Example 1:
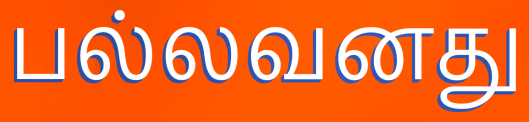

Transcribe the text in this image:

பல்லவனது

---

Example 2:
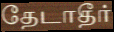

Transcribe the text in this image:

தேடாதீர்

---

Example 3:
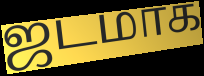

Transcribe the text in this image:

ஜடமாக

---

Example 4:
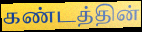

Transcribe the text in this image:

கண்டத்தின்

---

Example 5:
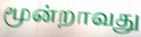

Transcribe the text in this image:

மூன்றாவது